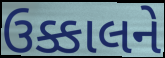
ઉક્કાલને